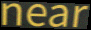
near